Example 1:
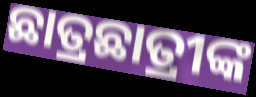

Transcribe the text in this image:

ଛାତ୍ରଛାତ୍ରୀଙ୍କ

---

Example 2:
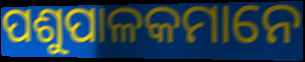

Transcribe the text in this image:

ପଶୁପାଳକମାନେ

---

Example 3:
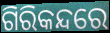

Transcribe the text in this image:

ଗିରିକନ୍ଦରେ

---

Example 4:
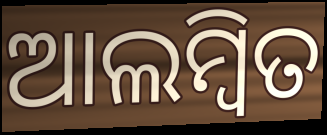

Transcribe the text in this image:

ଆଲମ୍ୱିତ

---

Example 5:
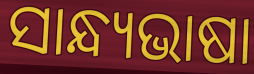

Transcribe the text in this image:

ସାନ୍ଧ୍ୟଭାଷା